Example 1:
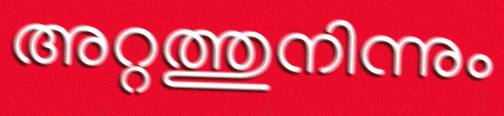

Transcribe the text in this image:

അറ്റത്തുനിന്നും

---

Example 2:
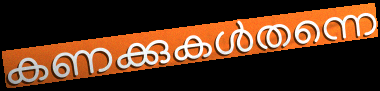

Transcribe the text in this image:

കണക്കുകൾതന്നെ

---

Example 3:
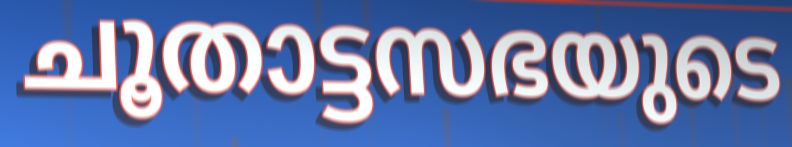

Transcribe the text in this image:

ചൂതാട്ടസഭയുടെ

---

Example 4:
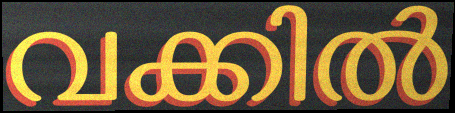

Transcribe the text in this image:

വക്കിൽ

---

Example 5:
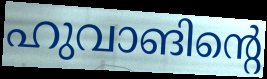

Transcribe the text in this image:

ഹുവാങിന്റെ